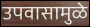
उपवासामुळे